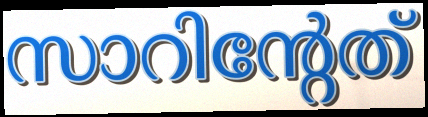
സാറിന്റേത്